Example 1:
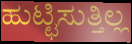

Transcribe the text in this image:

ಹುಟ್ಟಿಸುತ್ತಿಲ್ಲ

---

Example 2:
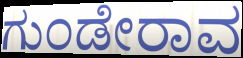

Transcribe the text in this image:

ಗುಂಡೇರಾವ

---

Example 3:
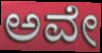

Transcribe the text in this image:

ಅವೇ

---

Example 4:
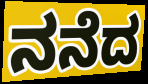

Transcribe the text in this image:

ನನೆದ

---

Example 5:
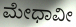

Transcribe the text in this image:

ಮೇಧಾವೀ